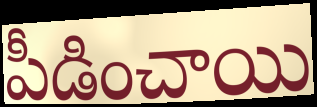
పీడించాయి